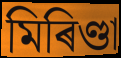
মিৰিণ্ডা